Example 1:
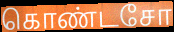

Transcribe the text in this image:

கொண்டசோ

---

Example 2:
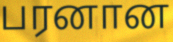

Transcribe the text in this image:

பரனான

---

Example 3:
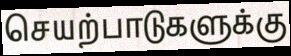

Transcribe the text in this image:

செயற்பாடுகளுக்கு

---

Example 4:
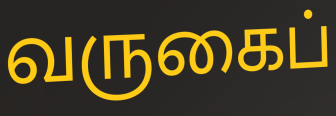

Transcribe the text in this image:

வருகைப்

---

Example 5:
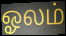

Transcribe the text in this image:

ஓலம்